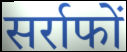
सर्राफों